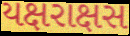
યક્ષરાક્ષસ